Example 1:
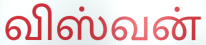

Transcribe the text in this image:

விஸ்வன்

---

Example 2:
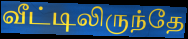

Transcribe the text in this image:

வீட்டிலிருந்தே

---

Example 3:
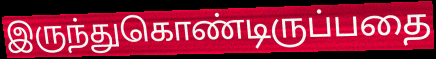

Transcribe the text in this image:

இருந்துகொண்டிருப்பதை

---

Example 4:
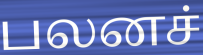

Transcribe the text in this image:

பலனச்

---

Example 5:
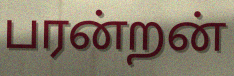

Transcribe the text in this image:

பரன்றன்